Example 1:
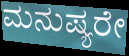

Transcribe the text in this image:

ಮನುಷ್ಯರೇ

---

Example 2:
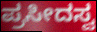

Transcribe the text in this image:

ಪ್ರಸೀದಸ್ವ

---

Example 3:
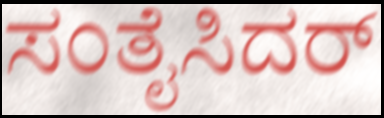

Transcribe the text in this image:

ಸಂತೈಸಿದರ್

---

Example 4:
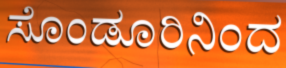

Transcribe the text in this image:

ಸೊಂಡೂರಿನಿಂದ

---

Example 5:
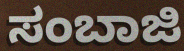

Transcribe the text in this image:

ಸಂಬಾಜಿ